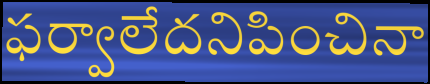
ఫర్వాలేదనిపించినా